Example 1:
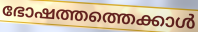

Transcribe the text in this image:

ഭോഷത്തത്തെക്കാൾ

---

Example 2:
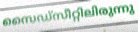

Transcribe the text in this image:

സൈഡ്സീറ്റിലിരുന്നു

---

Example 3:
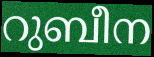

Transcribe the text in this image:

റുബീന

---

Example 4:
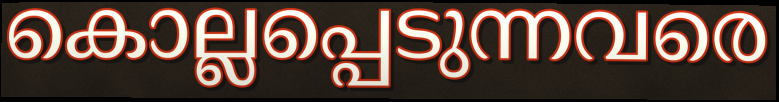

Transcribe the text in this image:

കൊല്ലപ്പെടുന്നവരെ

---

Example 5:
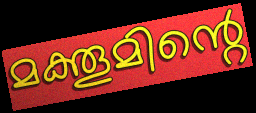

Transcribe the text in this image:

മക്തൂമിന്റെ